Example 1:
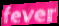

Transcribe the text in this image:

fever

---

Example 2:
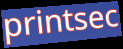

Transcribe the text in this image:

printsec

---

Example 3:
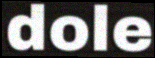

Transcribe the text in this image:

dole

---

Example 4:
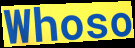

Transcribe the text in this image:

Whoso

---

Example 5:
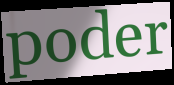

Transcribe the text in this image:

poder